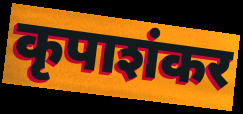
कृपाशंकर